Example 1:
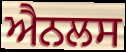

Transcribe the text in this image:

ਐਨਲਸ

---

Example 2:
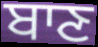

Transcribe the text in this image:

ਬਾਣ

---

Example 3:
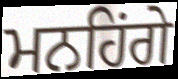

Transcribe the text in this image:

ਮਨਹਿਂਗੇ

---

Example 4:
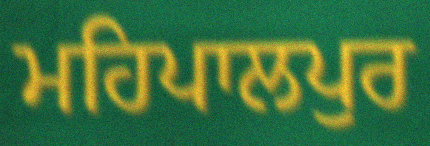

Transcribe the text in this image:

ਮਹਿਪਾਲਪੁਰ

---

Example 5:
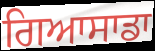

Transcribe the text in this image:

ਗਿਆਸਾਡਾ